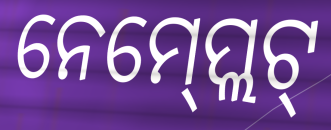
ନେମ୍‍ପ୍ଲେଟ୍